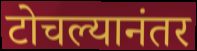
टोचल्यानंतर